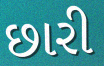
છારી